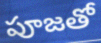
పూజతో